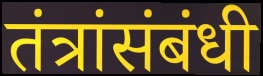
तंत्रांसंबंधी